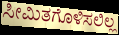
ಸೀಮಿತಗೊಳಿಸಲಿಲ್ಲ